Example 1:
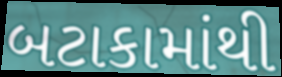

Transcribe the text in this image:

બટાકામાંથી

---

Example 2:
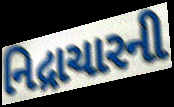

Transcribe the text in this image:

નિદ્રાચારની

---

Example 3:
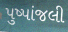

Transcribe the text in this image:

પુષ્પાંજલી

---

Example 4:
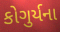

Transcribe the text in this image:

કોગુર્યના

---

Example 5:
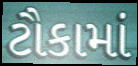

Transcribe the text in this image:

ટૌકામાં